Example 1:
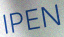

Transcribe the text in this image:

IPEN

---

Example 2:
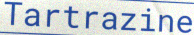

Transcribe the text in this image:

Tartrazine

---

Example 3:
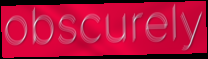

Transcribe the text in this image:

obscurely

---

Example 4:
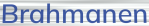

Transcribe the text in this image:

Brahmanen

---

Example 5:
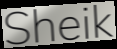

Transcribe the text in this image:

Sheik